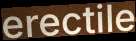
erectile